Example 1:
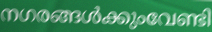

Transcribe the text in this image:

നഗരങ്ങൾക്കുംവേണ്ടി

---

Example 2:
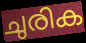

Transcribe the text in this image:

ചുരിക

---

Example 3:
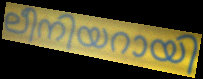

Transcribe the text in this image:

ലീനിയറായി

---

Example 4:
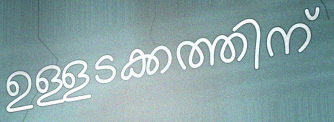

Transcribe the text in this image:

ഉള്ളടക്കത്തിന്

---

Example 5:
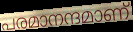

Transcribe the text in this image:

പരമാനന്ദമാണ്